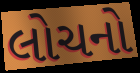
લોચનો